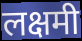
लक्षमी